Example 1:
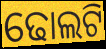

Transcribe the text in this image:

ଢୋଲଟି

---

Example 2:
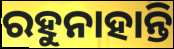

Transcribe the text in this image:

ରହୁନାହାନ୍ତି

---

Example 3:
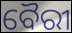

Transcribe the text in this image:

ବୈରୀ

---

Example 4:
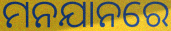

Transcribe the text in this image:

ମନଯାନରେ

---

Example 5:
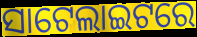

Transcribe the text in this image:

ସାଟେଲାଇଟରେ